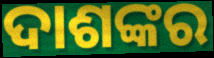
ଦାଶଙ୍କର